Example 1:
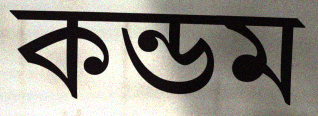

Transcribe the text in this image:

কন্ডম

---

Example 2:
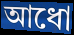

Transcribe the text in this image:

আধো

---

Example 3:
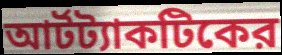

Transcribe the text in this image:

আর্টট্যাকটিকের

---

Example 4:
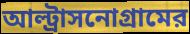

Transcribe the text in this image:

আল্ট্রাসনোগ্রামের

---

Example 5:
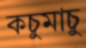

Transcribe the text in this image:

কচুমাচু